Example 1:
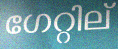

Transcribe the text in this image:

ഗേറ്റില്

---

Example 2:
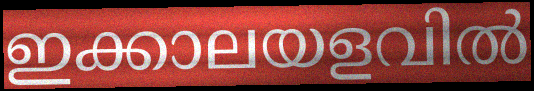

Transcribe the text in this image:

ഇക്കാലയളവിൽ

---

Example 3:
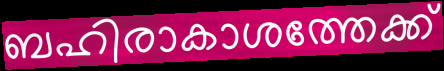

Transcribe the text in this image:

ബഹിരാകാശത്തേക്ക്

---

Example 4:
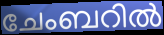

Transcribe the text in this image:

ചേംബറിൽ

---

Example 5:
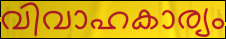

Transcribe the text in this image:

വിവാഹകാര്യം